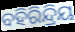
ବହିରିନ୍ଦ୍ରିୟ